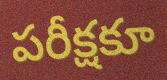
పరీక్షకూ